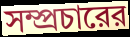
সম্প্রচারের